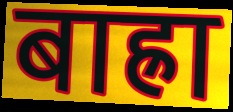
बाह्रा